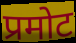
प्रमोट